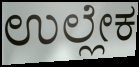
ಉಲ್ಲೇಕ